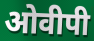
ओवीपी